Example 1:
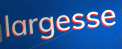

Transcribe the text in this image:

largesse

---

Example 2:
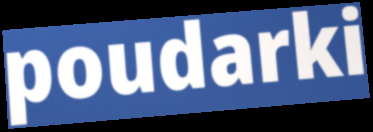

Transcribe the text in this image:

poudarki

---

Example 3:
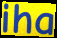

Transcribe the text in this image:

iha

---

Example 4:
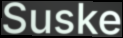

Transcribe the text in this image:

Suske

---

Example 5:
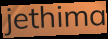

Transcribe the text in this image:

jethima